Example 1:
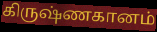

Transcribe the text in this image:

கிருஷ்ணகானம்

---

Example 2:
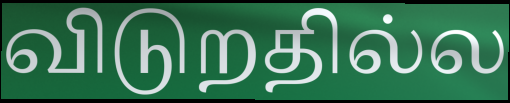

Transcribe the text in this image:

விடுறதில்ல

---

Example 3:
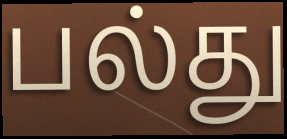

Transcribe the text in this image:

பல்து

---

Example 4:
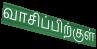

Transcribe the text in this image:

வாசிப்பிற்குள்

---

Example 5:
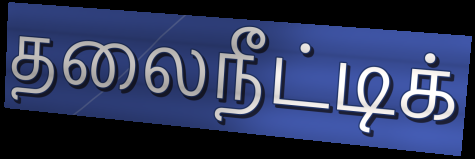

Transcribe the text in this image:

தலைநீட்டிக்